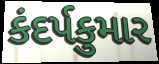
કંદર્પકુમાર